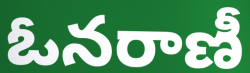
ఓనరాణీ